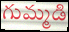
గుమ్మడి